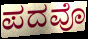
ಪದವೊ